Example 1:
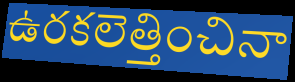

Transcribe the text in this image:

ఉరకలెత్తించినా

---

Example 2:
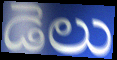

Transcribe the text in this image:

డెలు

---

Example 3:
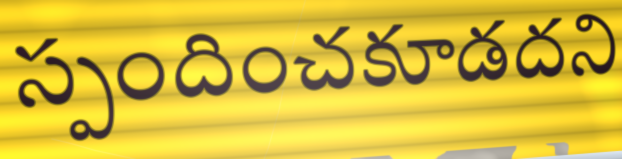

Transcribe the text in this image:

స్పందించకూడదని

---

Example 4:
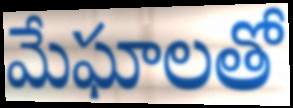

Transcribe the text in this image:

మేఘాలతో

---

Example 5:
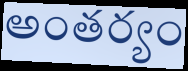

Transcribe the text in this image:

అంతర్యం